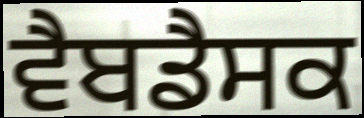
ਵੈਬਡੈਸਕ